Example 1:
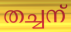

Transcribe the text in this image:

തച്ചന്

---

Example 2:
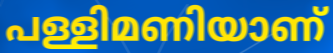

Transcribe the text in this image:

പള്ളിമണിയാണ്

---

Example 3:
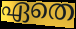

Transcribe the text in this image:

ഏതെ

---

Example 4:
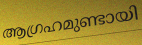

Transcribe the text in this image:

ആഗ്രഹമുണ്ടായി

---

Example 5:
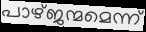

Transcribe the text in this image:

പാഴ്ജന്മമെന്ന്